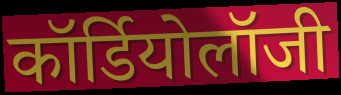
कॉर्डियोलॉजी